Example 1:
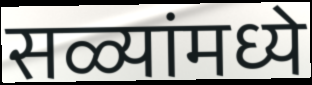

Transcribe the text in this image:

सळ्यांमध्ये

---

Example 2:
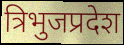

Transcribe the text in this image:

त्रिभुजप्रदेश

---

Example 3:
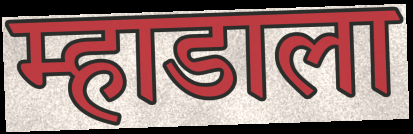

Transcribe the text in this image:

म्हाडाला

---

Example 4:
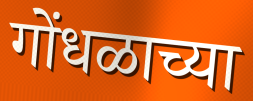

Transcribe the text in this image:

गोंधळाच्या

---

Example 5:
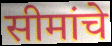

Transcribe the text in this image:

सीमांचे